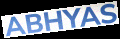
ABHYAS